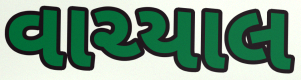
વાચ્યાલ